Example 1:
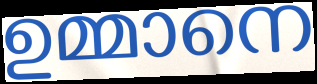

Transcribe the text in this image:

ഉമ്മാനെ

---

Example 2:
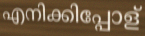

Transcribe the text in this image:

എനിക്കിപ്പോള്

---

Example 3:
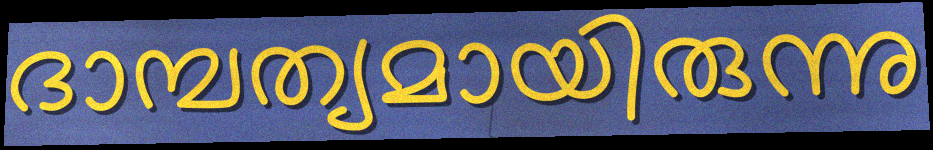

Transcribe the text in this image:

ദാമ്പത്യമായിരുന്നു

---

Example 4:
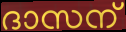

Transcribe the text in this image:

ദാസന്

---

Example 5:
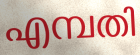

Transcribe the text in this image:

എമ്പതി